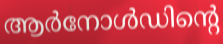
ആർനോൾഡിന്റെ